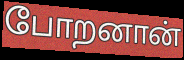
போறனான்